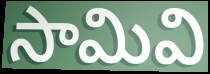
సామివి